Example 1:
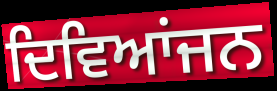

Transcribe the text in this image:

ਦਿਵਿਆਂਜਨ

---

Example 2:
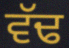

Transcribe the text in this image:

ਵੱਢ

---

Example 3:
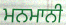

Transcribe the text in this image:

ਮਨਮਾਨੀ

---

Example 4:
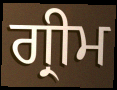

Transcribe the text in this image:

ਗ੍ਰੀਮ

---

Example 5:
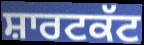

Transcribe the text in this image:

ਸ਼ਾਰਟਕੱਟ